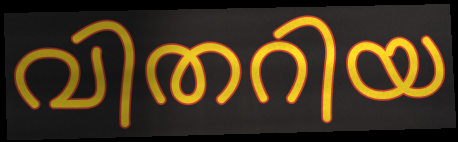
വിതറിയ